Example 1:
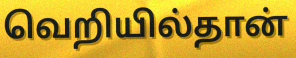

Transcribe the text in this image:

வெறியில்தான்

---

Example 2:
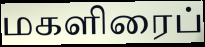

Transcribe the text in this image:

மகளிரைப்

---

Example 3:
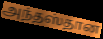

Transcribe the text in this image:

அந்தஸ்தான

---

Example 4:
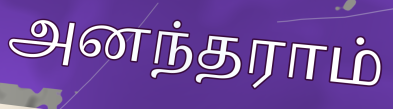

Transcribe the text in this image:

அனந்தராம்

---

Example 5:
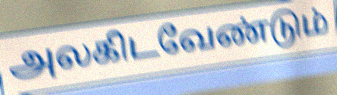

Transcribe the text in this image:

அலகிடவேண்டும்